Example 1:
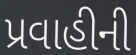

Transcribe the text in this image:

પ્રવાહીની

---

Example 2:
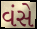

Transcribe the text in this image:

વંસે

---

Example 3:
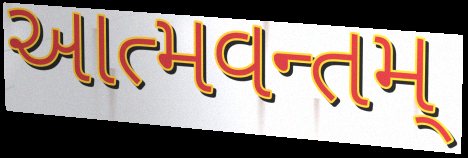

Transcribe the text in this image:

આત્મવન્તમ્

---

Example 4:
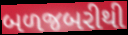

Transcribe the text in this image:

બળજબરીથી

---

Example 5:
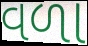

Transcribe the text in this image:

વળા